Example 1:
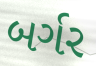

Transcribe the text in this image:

બર્ગર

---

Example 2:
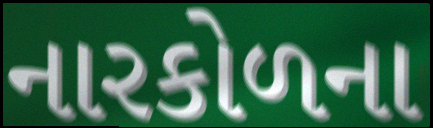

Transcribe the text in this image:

નારકોળના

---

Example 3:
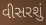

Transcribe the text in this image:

વીસરશું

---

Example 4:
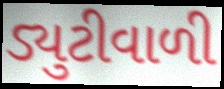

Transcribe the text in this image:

ડ્યુટીવાળી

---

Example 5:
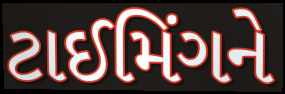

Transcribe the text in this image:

ટાઈમિંગને